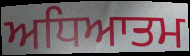
ਅਧਿਆਤਮ